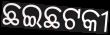
ଛଇଛଟକୀ